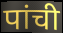
पांची